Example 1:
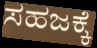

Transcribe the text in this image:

ಸಹಜಕ್ಕೆ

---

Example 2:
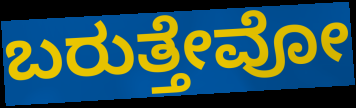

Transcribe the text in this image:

ಬರುತ್ತೇವೋ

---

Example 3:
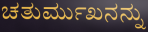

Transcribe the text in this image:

ಚತುರ್ಮುಖನನ್ನು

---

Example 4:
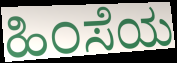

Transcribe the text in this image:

ಹಿಂಸೆಯ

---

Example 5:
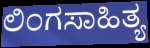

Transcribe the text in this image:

ಲಿಂಗಸಾಹಿತ್ಯ